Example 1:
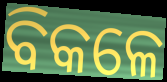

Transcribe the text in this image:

ବିକଳେ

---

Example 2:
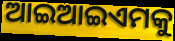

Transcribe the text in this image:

ଆଇଆଇଏମକୁ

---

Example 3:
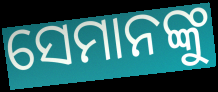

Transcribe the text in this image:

ସେମାନଙ୍କୁ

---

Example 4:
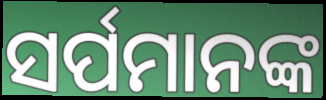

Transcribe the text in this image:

ସର୍ପମାନଙ୍କ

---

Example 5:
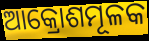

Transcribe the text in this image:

ଆକ୍ରୋଶମୂଳକ